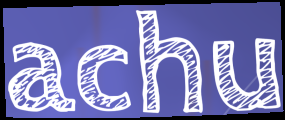
achu